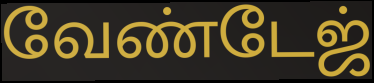
வேண்டேஜ்